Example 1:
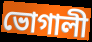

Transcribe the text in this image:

ভোগালী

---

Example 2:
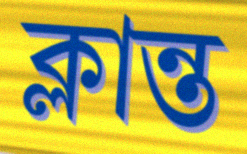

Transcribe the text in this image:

ক্লান্ত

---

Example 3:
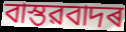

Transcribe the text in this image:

বাস্তৱবাদৰ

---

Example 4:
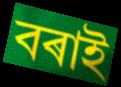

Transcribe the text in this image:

বৰাই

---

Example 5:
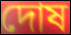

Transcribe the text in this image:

দোষ